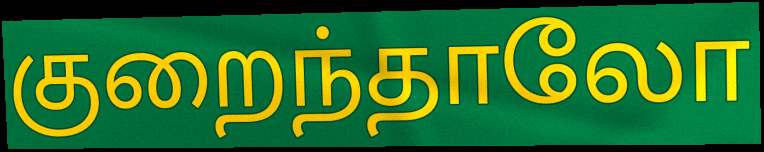
குறைந்தாலோ